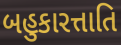
બહુકારત્તાતિ